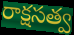
రాక్షసత్వ